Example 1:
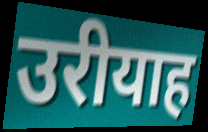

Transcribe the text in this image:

उरीयाह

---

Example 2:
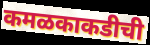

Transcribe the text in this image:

कमळकाकडीची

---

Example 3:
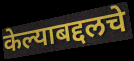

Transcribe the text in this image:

केल्याबद्दलचे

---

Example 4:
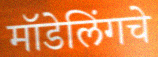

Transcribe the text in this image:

मॉडेलिंगचे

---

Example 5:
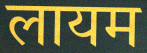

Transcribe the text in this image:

लायम